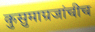
कुसुमाग्रजांचीच